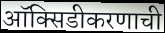
ऑक्सिडीकरणाची